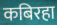
कबिरहा